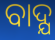
ବାଦ୍ଯ